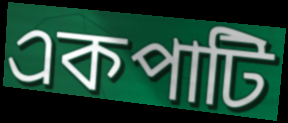
একপাটি